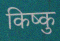
किष्कु